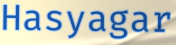
Hasyagar